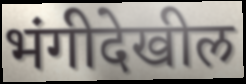
भंगीदेखील